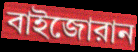
বাইজোরান